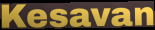
Kesavan